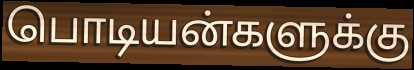
பொடியன்களுக்கு